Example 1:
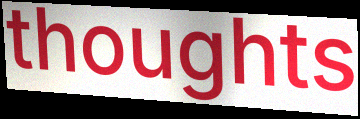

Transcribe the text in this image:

thoughts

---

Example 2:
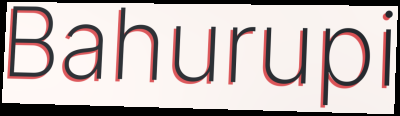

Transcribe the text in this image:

Bahurupi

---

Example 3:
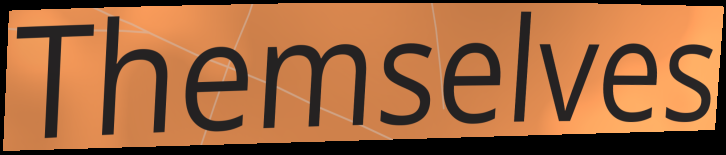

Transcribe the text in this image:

Themselves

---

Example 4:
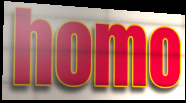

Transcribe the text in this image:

homo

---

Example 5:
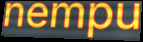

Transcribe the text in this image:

nempu